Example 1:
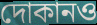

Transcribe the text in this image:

দোকানও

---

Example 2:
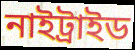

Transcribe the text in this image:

নাইট্রাইড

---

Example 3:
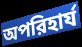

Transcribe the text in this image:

অপরিহার্য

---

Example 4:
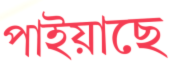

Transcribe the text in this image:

পাইয়াছে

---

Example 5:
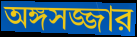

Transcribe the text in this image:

অঙ্গসজ্জার